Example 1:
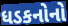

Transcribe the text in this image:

ધડકનોનો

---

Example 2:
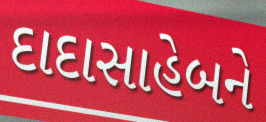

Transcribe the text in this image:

દાદાસાહેબને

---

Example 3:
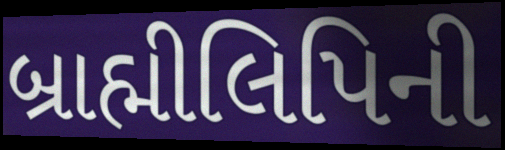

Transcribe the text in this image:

બ્રાહ્મીલિપિની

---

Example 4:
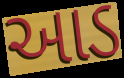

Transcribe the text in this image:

આડ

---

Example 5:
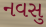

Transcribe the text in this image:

નવસુ